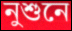
নুশুনে